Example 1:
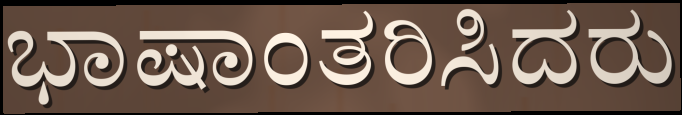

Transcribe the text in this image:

ಭಾಷಾಂತರಿಸಿದರು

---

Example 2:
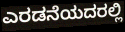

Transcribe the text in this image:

ಎರಡನೆಯದರಲ್ಲಿ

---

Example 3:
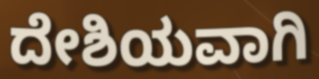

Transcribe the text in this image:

ದೇಶಿಯವಾಗಿ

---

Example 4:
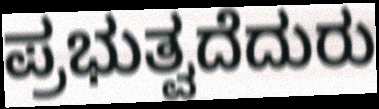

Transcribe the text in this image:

ಪ್ರಭುತ್ವದೆದುರು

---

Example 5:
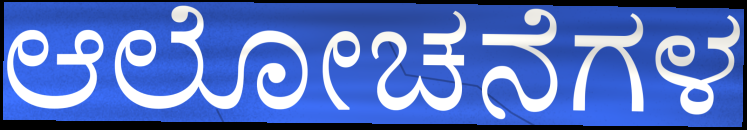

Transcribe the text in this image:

ಆಲೋಚನೆಗಳ